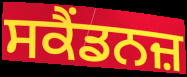
ਸਕੈਂਡਨਜ਼